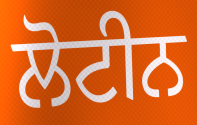
ਲੋਟੀਨ